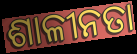
ଶାଳୀନତା